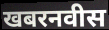
खबरनवीस